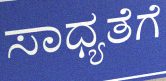
ಸಾಧ್ಯತೆಗೆ